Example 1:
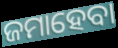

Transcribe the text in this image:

ଜମାହେବା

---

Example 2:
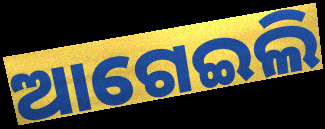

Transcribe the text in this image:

ଆଗେଇଲି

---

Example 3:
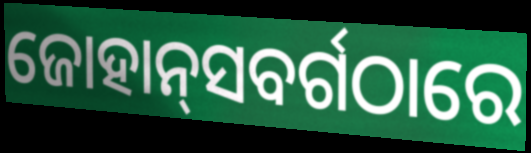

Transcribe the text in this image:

ଜୋହାନ୍‌ସବର୍ଗଠାରେ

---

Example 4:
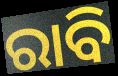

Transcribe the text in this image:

ରାବି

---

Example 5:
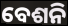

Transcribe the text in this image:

ବେଶନି